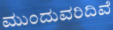
ಮುಂದುವರಿದಿವೆ